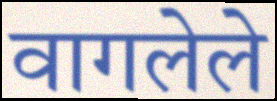
वागलेले